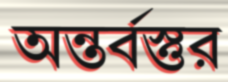
অন্তর্বস্তুর